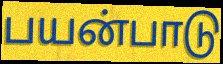
பயன்பாடு